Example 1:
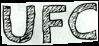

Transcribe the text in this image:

UFC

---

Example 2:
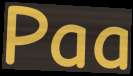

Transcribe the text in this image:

Paa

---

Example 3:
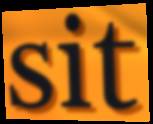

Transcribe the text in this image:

sit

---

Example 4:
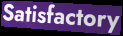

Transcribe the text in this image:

Satisfactory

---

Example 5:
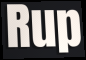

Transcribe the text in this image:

Rup